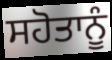
ਸਹੋਤਾਨੂੰ